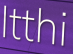
Itthi